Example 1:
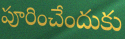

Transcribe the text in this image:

పూరించేందుకు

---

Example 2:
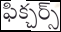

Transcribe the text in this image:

ఫిక్చర్స్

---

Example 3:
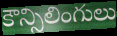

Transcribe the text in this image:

కౌన్సిలింగులు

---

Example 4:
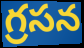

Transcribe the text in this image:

గ్రసన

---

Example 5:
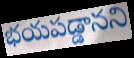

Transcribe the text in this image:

భయపడ్డానని